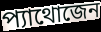
প্যাথোজেন